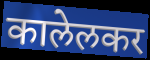
कालेलकर